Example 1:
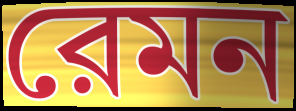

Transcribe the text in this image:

রেমন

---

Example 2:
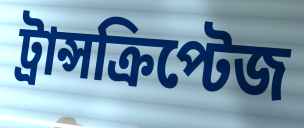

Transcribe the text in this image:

ট্রান্সক্রিপ্টেজ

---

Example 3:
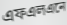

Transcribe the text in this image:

এফএলএনে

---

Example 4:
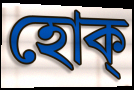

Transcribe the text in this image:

হোক্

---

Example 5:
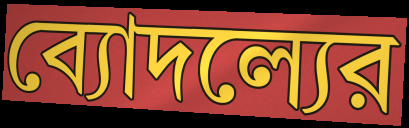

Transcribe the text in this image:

ব্যোদল্যের